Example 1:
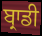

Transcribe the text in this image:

ਬ੍ਰਾਡੀ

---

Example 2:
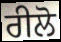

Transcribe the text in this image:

ਰੀਲੋ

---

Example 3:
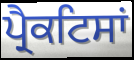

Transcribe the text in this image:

ਪ੍ਰੈਕਟਿਸਾਂ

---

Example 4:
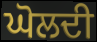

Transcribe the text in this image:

ਘੋਲਦੀ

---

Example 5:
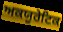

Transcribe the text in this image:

ਅਕਯੂਰੇਟਿਕ